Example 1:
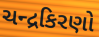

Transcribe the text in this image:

ચન્દ્રકિરણો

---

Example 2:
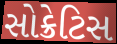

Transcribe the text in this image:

સોક્રેટિસ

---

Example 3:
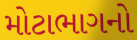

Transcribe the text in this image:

મોટાભાગનો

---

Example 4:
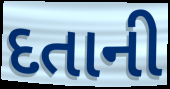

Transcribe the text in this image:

દતાની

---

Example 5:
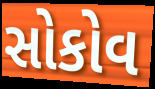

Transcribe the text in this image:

સોકોવ